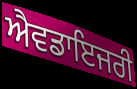
ਐਵਡਾਇਜਰੀ